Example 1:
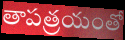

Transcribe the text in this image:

తాపత్రయంతో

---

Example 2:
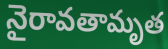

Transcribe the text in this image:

నైరావతామృత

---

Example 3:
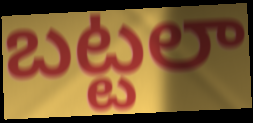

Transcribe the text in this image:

బట్టలా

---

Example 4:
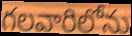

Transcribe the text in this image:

గలవారిలోను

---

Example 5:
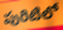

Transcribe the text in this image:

పురిటిలో